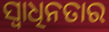
ସ୍ୱାଧିନତାର